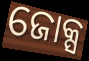
ଜୋକ୍ସ